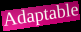
Adaptable